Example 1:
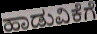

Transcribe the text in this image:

ಹಾಡುವಿಕೆಗೆ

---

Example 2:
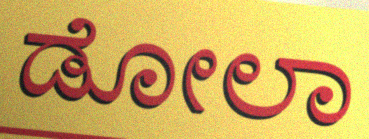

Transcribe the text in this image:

ಡೋಲಾ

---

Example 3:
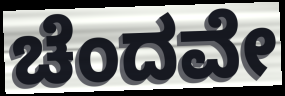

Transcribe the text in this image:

ಚೆಂದವೇ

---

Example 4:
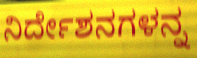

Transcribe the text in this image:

ನಿರ್ದೇಶನಗಳನ್ನ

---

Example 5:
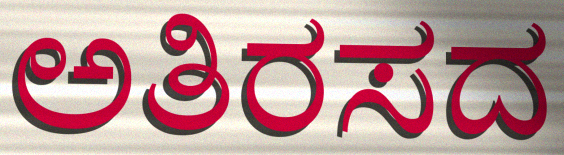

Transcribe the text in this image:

ಅತಿರಸದ